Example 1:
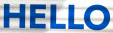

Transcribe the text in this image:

HELLO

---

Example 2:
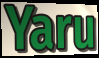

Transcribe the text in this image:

Yaru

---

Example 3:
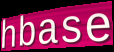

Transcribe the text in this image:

hbase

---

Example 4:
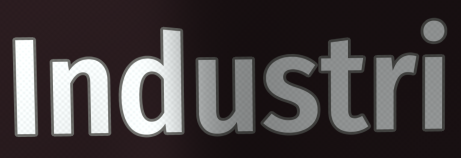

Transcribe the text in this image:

Industri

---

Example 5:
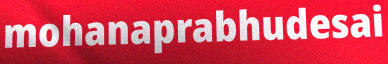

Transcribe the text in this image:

mohanaprabhudesai